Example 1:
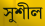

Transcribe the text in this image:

সুশীল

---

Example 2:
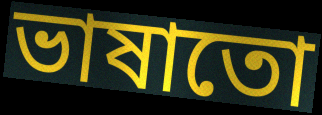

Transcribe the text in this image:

ভাষাতো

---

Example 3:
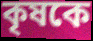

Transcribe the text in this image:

কৃষকে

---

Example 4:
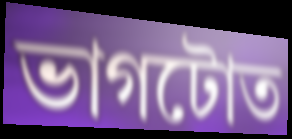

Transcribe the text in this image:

ভাগটোত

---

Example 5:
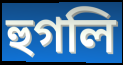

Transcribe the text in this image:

হুগলি